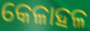
କେଳାହଳ